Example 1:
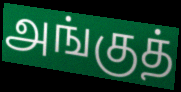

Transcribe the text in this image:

அங்குத்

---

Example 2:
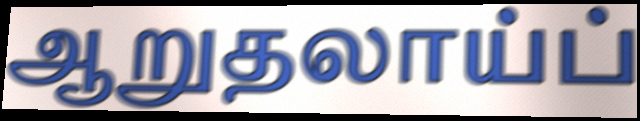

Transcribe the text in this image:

ஆறுதலாய்ப்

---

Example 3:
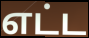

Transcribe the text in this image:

எட்ட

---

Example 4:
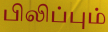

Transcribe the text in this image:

பிலிப்பும்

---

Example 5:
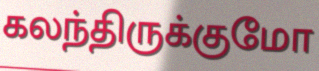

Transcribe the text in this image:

கலந்திருக்குமோ